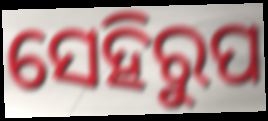
ସେହିରୁପ